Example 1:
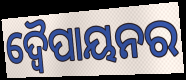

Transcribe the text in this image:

ଦ୍ୱୈପାୟନର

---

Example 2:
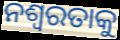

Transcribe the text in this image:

ନଶ୍ବରତାକୁ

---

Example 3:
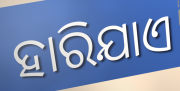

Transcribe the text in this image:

ହାରିଯାଏ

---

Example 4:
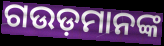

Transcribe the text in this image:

ଗଉଡ଼ମାନଙ୍କ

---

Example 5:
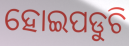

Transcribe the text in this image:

ହୋଇପଡୁଚି